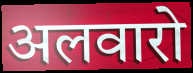
अलवारो